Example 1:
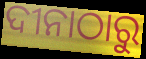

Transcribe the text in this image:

ଦୀନାଠାରୁ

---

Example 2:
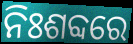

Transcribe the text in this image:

ନିଃଶବ୍ଦରେ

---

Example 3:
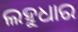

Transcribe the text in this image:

ଲହୁଧାର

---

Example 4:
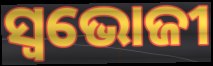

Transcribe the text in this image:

ସ୍ବଭୋଜୀ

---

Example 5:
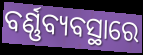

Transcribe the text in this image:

ବର୍ଣ୍ଣବ୍ୟବସ୍ଥାରେ